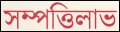
সম্পত্তিলাভ